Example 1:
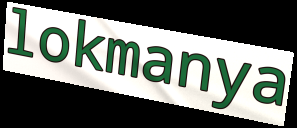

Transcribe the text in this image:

lokmanya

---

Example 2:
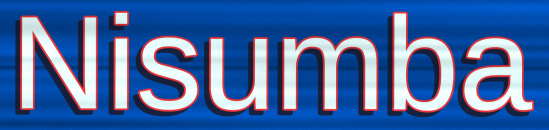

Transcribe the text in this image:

Nisumba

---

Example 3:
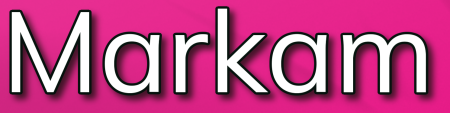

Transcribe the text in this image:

Markam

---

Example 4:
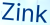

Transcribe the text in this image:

Zink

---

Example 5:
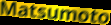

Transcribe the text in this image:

Matsumoto